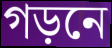
গড়নে